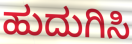
ಹುದುಗಿಸಿ